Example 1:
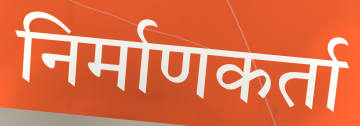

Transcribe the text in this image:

निर्माणकर्ता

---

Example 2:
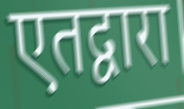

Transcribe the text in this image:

एतद्वारा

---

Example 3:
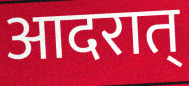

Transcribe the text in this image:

आदरात्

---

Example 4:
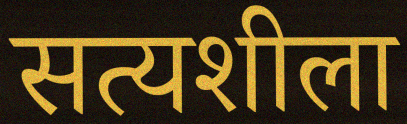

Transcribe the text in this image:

सत्यशीला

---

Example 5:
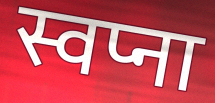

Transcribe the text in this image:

स्वप्ना